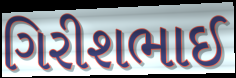
ગિરીશભાઈ